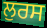
ਲੁਰਸ